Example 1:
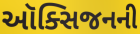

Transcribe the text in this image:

ઑક્સિજનની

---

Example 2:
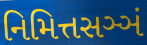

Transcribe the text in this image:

નિમિત્તસઞ્ઞં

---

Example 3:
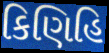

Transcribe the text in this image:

કિણિહિ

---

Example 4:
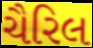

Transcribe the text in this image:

ચૈરિલ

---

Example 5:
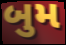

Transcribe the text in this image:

બુમ